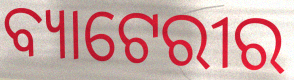
ବ୍ୟାଟେରୀର